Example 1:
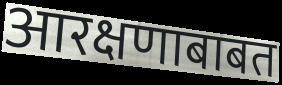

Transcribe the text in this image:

आरक्षणाबाबत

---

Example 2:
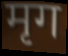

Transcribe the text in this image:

मृग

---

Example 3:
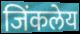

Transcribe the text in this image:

जिंकलेय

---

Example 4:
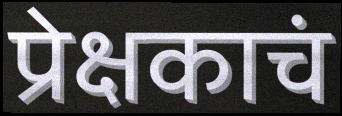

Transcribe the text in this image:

प्रेक्षकाचं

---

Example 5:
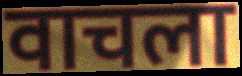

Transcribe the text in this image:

वाचला